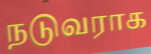
நடுவராக